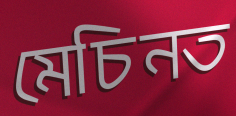
মেচিনত